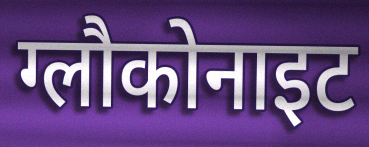
ग्लौकोनाइट